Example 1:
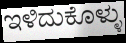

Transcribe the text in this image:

ಇಳಿದುಕೊಳ್ಳು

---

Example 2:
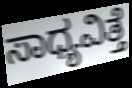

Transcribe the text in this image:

ಸಾಧ್ಯವಿತ್ತೆ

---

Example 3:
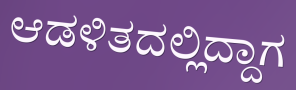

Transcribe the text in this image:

ಆಡಳಿತದಲ್ಲಿದ್ದಾಗ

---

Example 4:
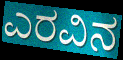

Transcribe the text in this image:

ಎರವಿನ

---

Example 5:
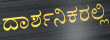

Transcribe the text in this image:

ದಾರ್ಶನಿಕರಲ್ಲಿ